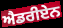
ਐਡਰੀਏਨ